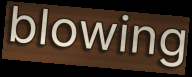
blowing